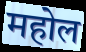
महोल